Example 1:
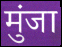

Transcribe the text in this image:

मुंजा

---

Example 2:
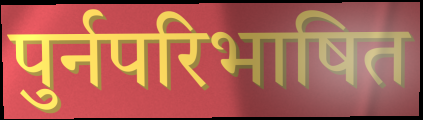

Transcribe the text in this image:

पुर्नपरिभाषित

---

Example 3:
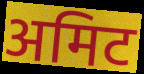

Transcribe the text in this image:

अमिट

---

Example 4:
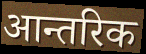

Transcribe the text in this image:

आन्तरिक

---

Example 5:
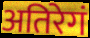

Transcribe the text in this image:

अतिरेगं